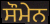
ਸੌਮੇਨ